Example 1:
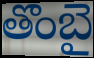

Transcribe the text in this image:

తొంబై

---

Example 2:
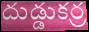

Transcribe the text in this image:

దుడ్డుకర్ర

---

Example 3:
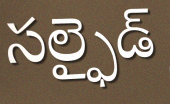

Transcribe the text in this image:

సల్ఫైడ్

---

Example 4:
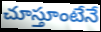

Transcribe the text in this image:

చూస్తూంటేనే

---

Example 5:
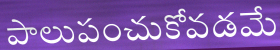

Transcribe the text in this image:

పాలుపంచుకోవడమే